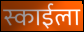
स्काईला